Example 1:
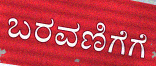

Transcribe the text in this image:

ಬರವಣಿಗೆಗೆ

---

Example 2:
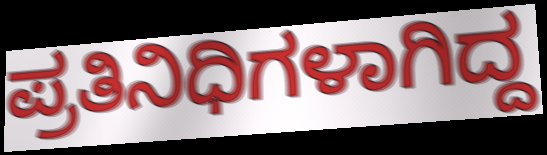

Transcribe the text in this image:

ಪ್ರತಿನಿಧಿಗಳಾಗಿದ್ದ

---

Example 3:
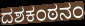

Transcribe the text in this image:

ದಶಕಂಠನಂ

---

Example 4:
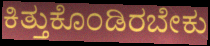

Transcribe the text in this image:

ಕಿತ್ತುಕೊಂಡಿರಬೇಕು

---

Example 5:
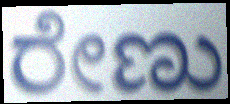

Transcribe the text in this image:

ರೇಣು